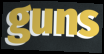
guns